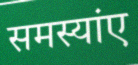
समस्यांए